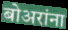
बोअरांना